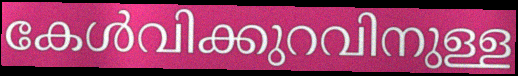
കേൾവിക്കുറവിനുള്ള